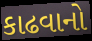
કાઢવાનો